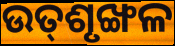
ଉତ୍‌ଶୃଙ୍ଖଳ